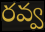
రవ్వ